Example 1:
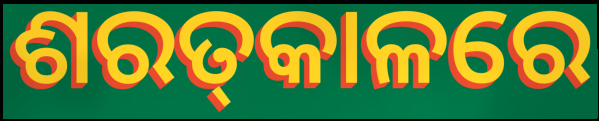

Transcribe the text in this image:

ଶରତ୍‌କାଳରେ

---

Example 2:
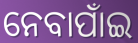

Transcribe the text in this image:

ନେବାପାଁଇ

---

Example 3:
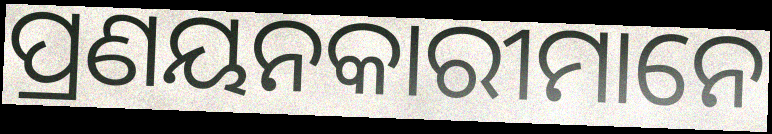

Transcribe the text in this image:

ପ୍ରଣୟନକାରୀମାନେ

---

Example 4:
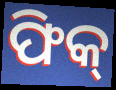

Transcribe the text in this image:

ଫିକ୍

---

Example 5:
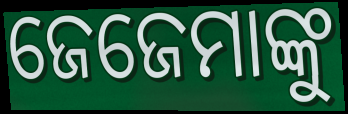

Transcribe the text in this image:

ଜେଜେମାଙ୍କୁ